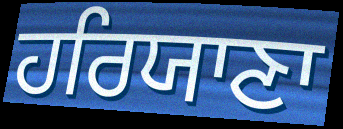
ਹਰਿਯਾਣਾ